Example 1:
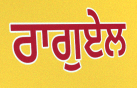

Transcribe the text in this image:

ਰਾਗੁਏਲ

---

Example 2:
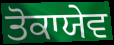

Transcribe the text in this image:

ਤੋਕਾਯੇਵ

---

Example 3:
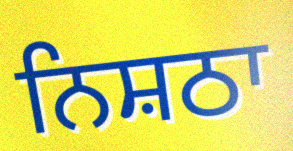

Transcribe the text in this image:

ਨਿਸ਼ਠਾ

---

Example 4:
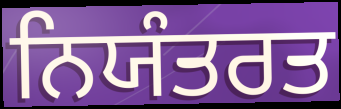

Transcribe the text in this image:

ਨਿਯੰਤਰਤ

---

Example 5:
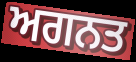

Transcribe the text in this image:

ਅਗਨਤ